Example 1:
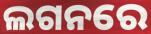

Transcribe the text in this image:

ଲଗନରେ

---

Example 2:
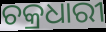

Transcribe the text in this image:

ଚକ୍ରଧାରୀ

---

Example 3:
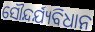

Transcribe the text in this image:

ସୌନ୍ଦର୍ଯ୍ୟବିଧାନ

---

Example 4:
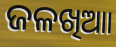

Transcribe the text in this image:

ଜଳଖିଆା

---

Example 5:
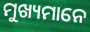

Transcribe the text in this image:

ମୁଖ୍ୟମାନେ